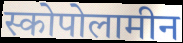
स्कोपोलामीन